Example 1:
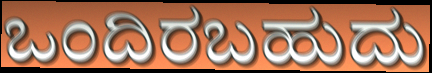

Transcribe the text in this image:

ಒಂದಿರಬಹುದು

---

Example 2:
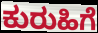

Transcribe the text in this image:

ಕುರುಹಿಗೆ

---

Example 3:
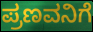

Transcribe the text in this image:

ಪ್ರಣವನಿಗೆ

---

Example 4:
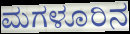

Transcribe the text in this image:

ಮಗಳೂರಿನ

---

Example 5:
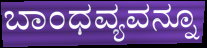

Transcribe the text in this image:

ಬಾಂಧವ್ಯವನ್ನೂ